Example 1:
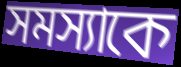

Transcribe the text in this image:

সমস্যাকে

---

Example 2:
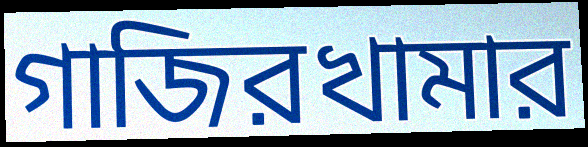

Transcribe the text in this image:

গাজিরখামার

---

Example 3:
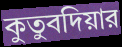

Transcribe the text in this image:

কুতুবদিয়ার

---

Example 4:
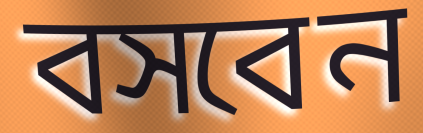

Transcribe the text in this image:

বসবেন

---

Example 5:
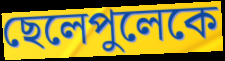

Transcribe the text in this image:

ছেলেপুলেকে